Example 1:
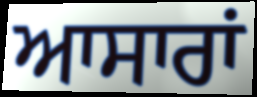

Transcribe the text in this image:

ਆਸਾਰਾਂ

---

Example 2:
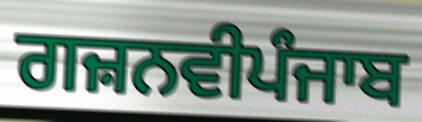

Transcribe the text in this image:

ਗਜ਼ਨਵੀਪੰਜਾਬ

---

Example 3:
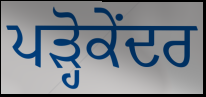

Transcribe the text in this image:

ਪੜ੍ਹੋਕੇਂਦਰ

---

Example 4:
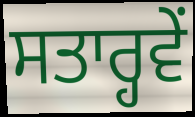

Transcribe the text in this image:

ਸਤਾਰ੍ਹਵੇਂ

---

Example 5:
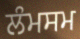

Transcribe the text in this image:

ਲੰਮਸਮ